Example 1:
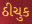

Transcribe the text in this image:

ઠીચુક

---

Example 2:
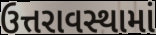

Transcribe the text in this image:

ઉત્તરાવસ્થામાં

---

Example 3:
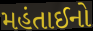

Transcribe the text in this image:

મહંતાઈનો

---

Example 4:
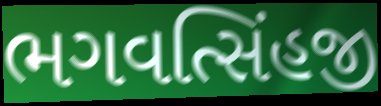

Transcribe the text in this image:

ભગવત્સિંહજી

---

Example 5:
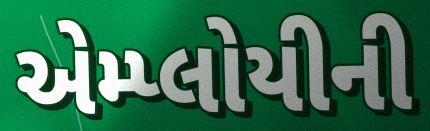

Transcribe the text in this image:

એમ્પ્લોયીની